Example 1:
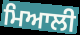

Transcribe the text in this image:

ਮਿਆਲੀ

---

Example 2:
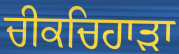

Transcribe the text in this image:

ਚੀਕਚਿਹਾੜਾ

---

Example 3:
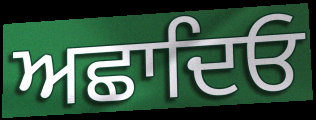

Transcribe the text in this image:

ਅਛਾਦਿਓ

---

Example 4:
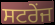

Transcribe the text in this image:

ਸਟਰੇਂਜ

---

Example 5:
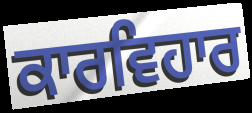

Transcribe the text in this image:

ਕਾਰਵਿਹਾਰ